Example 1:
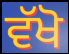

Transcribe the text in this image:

ਵੱਖੋ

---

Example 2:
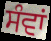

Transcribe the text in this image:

ਸੰਵਾਂ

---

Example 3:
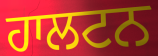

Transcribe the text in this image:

ਹਾਲਟਨ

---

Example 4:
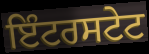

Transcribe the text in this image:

ਇੰਟਰਸਟੇਟ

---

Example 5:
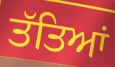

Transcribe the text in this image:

ਤੱਤਿਆਂ